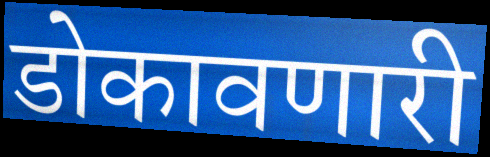
डोकावणारी